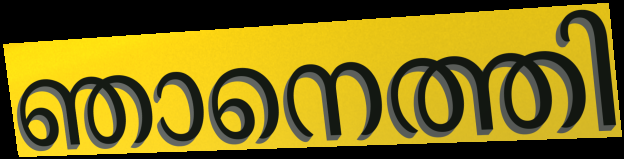
ഞാനെത്തി